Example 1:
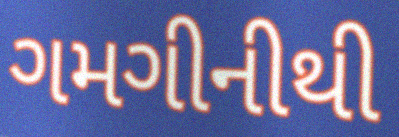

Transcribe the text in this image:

ગમગીનીથી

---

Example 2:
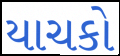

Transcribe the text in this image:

યાચકો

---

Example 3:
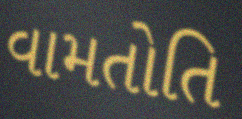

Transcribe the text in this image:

વામતોતિ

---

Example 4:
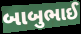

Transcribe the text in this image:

બાબુભાઈ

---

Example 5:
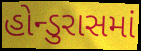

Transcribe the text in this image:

હોન્ડુરાસમાં